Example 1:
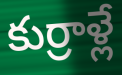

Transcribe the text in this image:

కుర్రాళ్లే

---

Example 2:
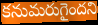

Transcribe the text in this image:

కనుమరుగైందని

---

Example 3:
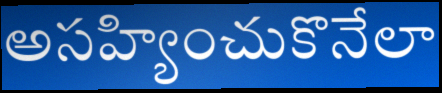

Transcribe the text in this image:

అసహ్యించుకొనేలా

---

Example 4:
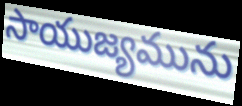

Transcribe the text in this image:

సాయుజ్యమును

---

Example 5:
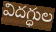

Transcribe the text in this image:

విదగ్ధుల